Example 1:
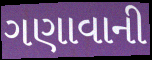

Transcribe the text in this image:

ગણાવાની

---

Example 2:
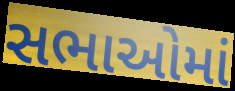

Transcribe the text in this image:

સભાઓમાં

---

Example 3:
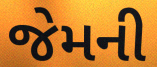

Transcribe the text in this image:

જેમની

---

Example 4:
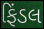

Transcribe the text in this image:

ફિંડલ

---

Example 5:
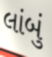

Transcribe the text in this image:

લાંબું